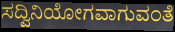
ಸದ್ವಿನಿಯೋಗವಾಗುವಂತೆ